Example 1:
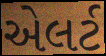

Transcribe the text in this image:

એલર્ટ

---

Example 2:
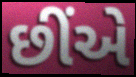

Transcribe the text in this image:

છીંએ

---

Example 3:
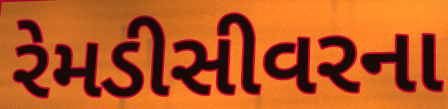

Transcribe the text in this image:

રેમડીસીવરના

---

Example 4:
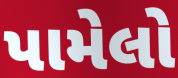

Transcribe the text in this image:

પામેલો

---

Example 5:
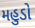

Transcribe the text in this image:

મહુડો